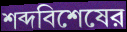
শব্দবিশেষের